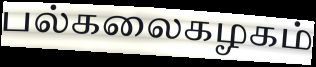
பல்கலைகழகம்